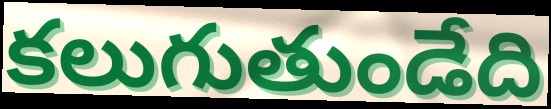
కలుగుతుండేది